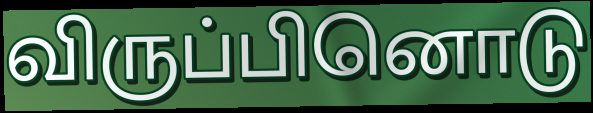
விருப்பினொடு